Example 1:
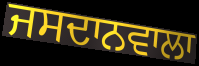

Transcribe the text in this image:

ਜਸਦਾਨਵਾਲਾ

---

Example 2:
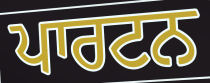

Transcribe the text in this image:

ਪਾਰਟਨ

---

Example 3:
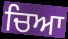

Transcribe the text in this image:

ਚਿਆ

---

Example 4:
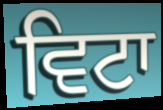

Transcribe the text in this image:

ਵਿਟਾ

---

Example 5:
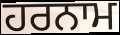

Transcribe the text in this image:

ਹਰਨਾਮ